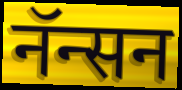
नॅन्सन